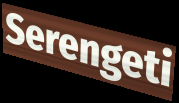
Serengeti